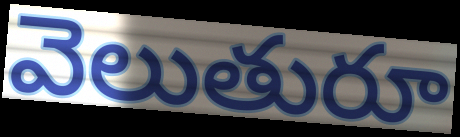
వెలుతురూ